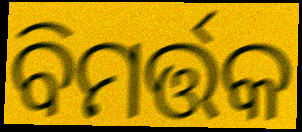
ବିମର୍ତ୍ତକ